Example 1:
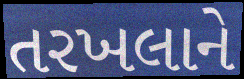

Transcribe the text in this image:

તરખલાને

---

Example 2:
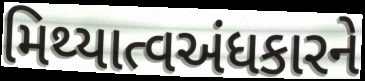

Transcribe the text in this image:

મિથ્યાત્વઅંધકારને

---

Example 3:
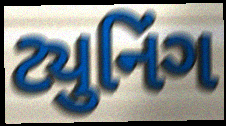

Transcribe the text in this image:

ટ્યુનિંગ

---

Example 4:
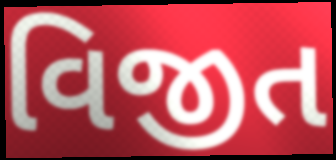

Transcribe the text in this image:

વિજીત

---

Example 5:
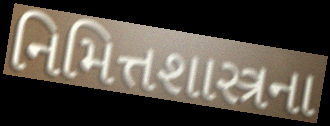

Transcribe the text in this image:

નિમિત્તશાસ્ત્રના